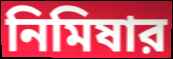
নিমিষার